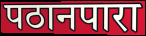
पठानपारा